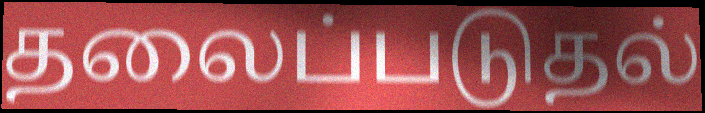
தலைப்படுதல்